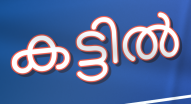
കട്ടിൽ